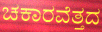
ಚಕಾರವೆತ್ತದ